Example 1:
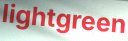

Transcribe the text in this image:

lightgreen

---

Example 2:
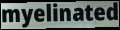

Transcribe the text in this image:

myelinated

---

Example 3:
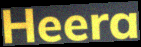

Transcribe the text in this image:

Heera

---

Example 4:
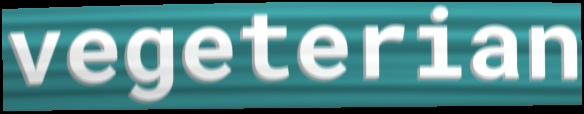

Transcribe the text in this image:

vegeterian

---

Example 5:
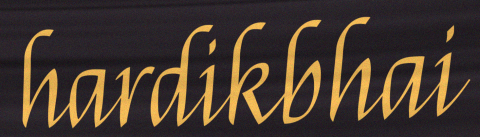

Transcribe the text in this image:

hardikbhai